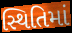
સ્થિતિમાં